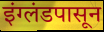
इंग्लंडपासून